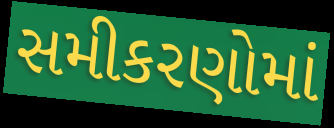
સમીકરણોમાં